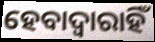
ହେବାଦ୍ଵାରାହିଁ